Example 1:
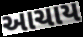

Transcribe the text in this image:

આચાય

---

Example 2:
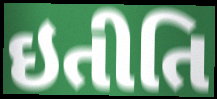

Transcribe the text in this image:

ઇતીતિ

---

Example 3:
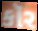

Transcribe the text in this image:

કૉર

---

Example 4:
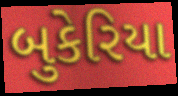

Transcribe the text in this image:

બુકેરિયા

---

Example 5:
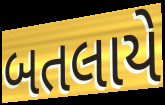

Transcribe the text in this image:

બતલાયે